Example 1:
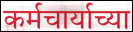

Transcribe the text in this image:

कर्मचार्याच्या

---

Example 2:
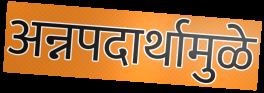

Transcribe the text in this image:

अन्नपदार्थामुळे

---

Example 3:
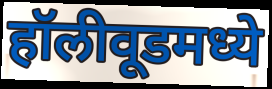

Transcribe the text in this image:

हॉलीवूडमध्ये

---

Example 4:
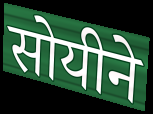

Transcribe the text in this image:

सोयीने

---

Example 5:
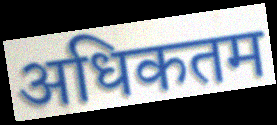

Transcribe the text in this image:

अधिकतम